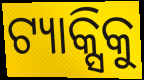
ଟ୍ୟାକ୍ସିକୁ